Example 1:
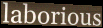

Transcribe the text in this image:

laborious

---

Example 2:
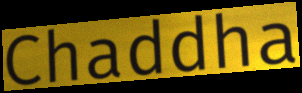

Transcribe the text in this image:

Chaddha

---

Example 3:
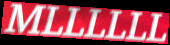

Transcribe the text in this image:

MLLLLLL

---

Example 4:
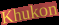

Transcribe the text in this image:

Khukon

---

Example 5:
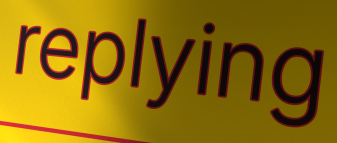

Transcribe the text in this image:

replying